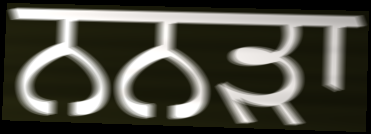
ਨਨੜਾ